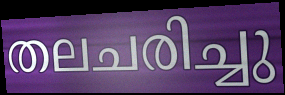
തലചരിച്ചു